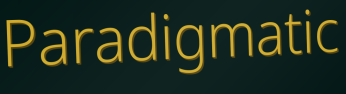
Paradigmatic